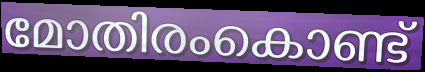
മോതിരംകൊണ്ട്